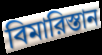
বিমারিস্তান